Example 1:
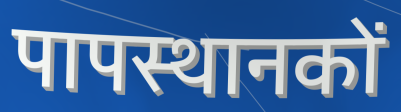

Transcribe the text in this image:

पापस्थानकों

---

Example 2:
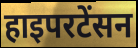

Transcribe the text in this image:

हाइपरटेंसन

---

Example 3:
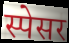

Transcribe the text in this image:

स्पेसर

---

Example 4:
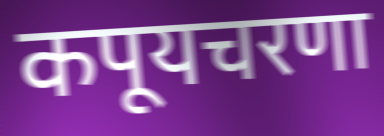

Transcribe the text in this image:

कपूयचरणा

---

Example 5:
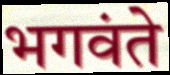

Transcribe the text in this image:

भगवंते